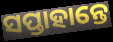
ସପ୍ତାହାନ୍ତେ